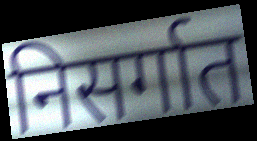
निसर्गात